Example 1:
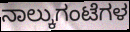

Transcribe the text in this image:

ನಾಲ್ಕುಗಂಟೆಗಳ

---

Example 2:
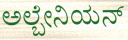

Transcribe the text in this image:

ಅಲ್ಬೇನಿಯನ್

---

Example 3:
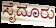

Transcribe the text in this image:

ಸೈದೂರು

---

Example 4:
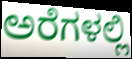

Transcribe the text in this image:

ಅರೆಗಳಲ್ಲಿ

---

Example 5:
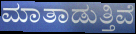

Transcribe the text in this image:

ಮಾತಾಡುತ್ತಿವೆ